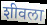
शीवला